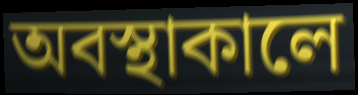
অবস্থাকালে